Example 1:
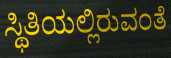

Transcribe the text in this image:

ಸ್ಥಿತಿಯಲ್ಲಿರುವಂತೆ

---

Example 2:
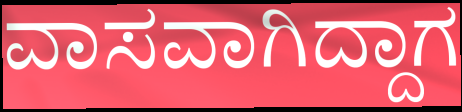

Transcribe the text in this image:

ವಾಸವಾಗಿದ್ದಾಗ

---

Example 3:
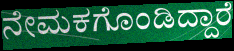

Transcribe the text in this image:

ನೇಮಕಗೊಂಡಿದ್ದಾರೆ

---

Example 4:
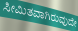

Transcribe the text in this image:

ಸೀಮಿತವಾಗಿರುವುದೇ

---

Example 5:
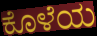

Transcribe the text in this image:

ಕೊಳೆಯ